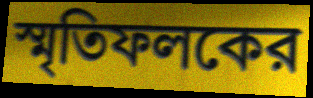
স্মৃতিফলকের